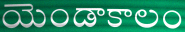
యెండాకాలం